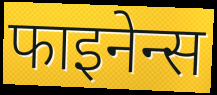
फाइनेन्स